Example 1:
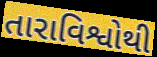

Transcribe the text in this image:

તારાવિશ્વોથી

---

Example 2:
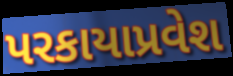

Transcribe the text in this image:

પરકાયાપ્રવેશ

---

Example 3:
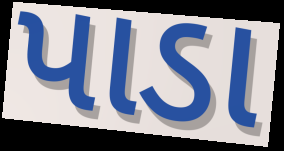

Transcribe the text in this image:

પાડા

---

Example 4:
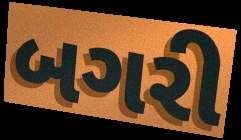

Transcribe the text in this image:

બગરી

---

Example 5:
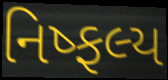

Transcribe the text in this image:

નિષ્ફલ્ય